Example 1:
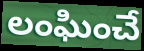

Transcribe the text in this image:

లంఘించే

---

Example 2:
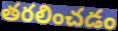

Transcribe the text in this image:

తరలించడం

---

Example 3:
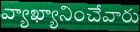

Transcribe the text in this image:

వ్యాఖ్యానించేవారు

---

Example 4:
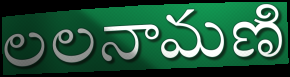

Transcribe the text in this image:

లలనామణి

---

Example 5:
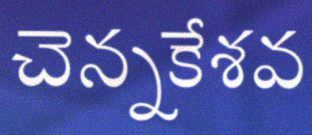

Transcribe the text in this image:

చెన్నకేశవ